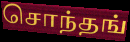
சொந்தங்